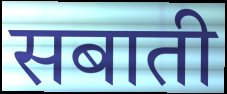
सबाती